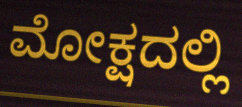
ಮೋಕ್ಷದಲ್ಲಿ